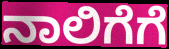
ನಾಲಿಗೆಗೆ